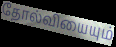
தோல்வியையும்